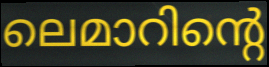
ലെമാറിന്റെ